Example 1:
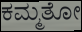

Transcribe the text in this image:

ಕಮ್ಮತೋ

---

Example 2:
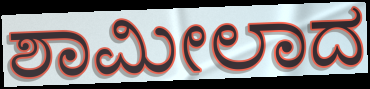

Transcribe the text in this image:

ಶಾಮೀಲಾದ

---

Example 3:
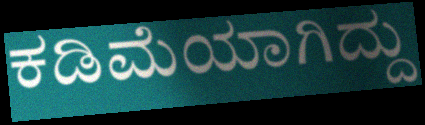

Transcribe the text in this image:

ಕಡಿಮೆಯಾಗಿದ್ದು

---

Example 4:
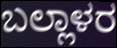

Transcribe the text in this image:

ಬಲ್ಲಾಳರ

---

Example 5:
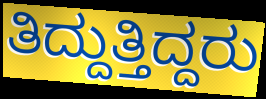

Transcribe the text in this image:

ತಿದ್ದುತ್ತಿದ್ದರು